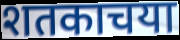
शतकाचया